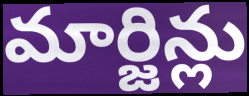
మార్జిన్లు